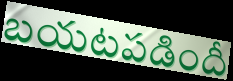
బయటపడిందీ